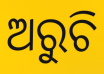
ଅରୁଚି